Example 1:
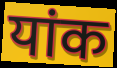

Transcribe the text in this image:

यांक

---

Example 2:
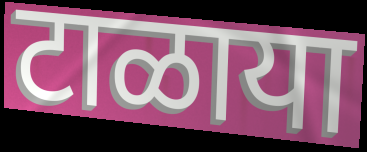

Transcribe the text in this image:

टाळाया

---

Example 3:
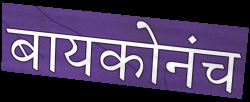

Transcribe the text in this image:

बायकोनंच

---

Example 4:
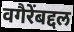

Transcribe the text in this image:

वगैरेंबद्दल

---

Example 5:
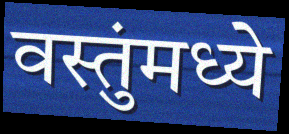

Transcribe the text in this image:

वस्तुंमध्ये